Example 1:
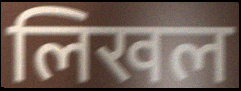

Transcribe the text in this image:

लिखल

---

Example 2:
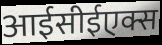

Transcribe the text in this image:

आईसीईएक्स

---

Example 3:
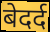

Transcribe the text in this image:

बेदर्द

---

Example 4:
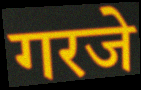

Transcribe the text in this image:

गरजे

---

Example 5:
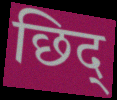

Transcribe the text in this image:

छिद्